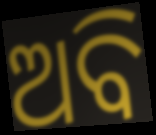
ଅବି